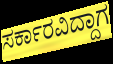
ಸರ್ಕಾರವಿದ್ದಾಗ